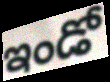
ఇండో